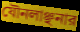
যৌনলাঞ্ছনার